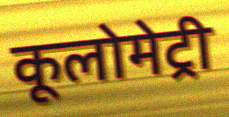
कूलोमेट्री